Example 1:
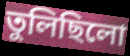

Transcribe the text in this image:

তুলিছিলো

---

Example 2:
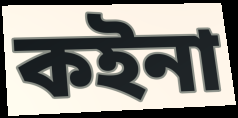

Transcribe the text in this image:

কইনা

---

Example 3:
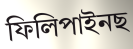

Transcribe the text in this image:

ফিলিপাইনছ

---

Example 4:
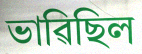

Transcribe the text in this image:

ভাৱিছিল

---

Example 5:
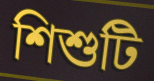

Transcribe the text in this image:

শিশুটি